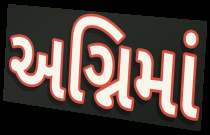
અગ્નિમાં